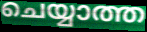
ചെയ്യാത്ത